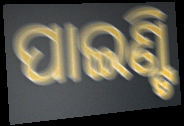
ପାଇଣ୍ଟି